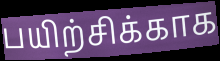
பயிற்சிக்காக